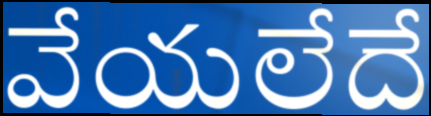
వేయలేదే